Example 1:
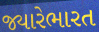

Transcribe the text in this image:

જ્યારેભારત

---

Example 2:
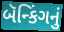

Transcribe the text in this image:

બૅન્કિંગનું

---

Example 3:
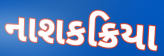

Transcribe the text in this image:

નાશકક્રિયા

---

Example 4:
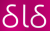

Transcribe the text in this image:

ઠાઠ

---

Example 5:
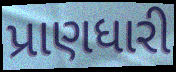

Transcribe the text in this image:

પ્રાણધારી